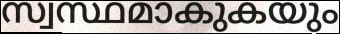
സ്വസ്ഥമാകുകയും